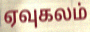
ஏவுகலம்